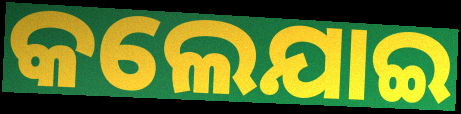
କଲେଯାଇ